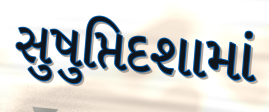
સુષુપ્તિદશામાં